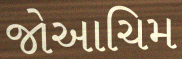
જોઆચિમ